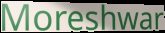
Moreshwar